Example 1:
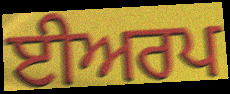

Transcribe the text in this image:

ਈਅਰਪ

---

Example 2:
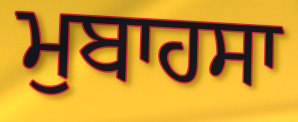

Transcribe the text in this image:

ਮੁਬਾਹਸਾ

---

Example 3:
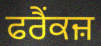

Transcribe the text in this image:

ਫਰੈਂਕਜ਼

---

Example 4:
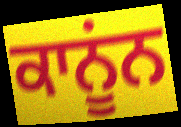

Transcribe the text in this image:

ਕਾਨੂਂਨ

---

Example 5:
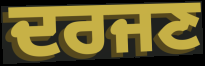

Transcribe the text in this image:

ਦਰਜਣ